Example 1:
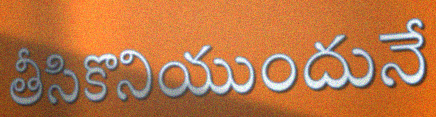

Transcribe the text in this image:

తీసికొనియుందునే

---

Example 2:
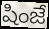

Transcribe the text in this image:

షింజే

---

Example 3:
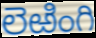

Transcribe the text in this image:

లెఱింగి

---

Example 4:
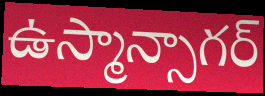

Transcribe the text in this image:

ఉస్మాన్సాగర్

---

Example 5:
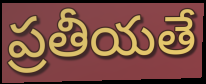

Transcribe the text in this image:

ప్రతీయతే